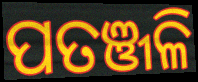
ପତଞ୍ଜଳି